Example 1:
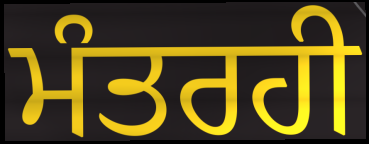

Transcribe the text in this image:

ਮੰਤਰਹੀ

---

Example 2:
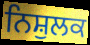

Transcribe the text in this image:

ਨਿਸ਼ੁਲਕ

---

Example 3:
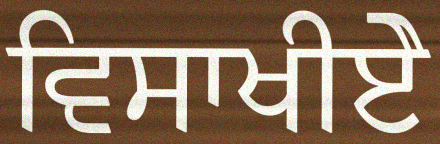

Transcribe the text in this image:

ਵਿਸਾਖੀਏੇ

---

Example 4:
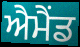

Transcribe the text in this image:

ਐਮੈਂਡ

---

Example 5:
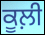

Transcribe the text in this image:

ਕੂਲ਼ੀ